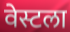
वेस्टला